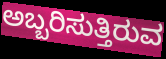
ಅಬ್ಬರಿಸುತ್ತಿರುವ